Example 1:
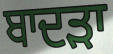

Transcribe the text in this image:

ਬਾਦੜਾ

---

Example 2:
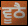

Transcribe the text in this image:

ਵੂਠੈ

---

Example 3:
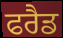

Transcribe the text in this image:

ਫਰੈਡ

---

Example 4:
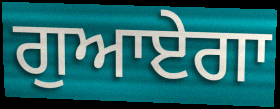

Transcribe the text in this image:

ਗੁਆਏਗਾ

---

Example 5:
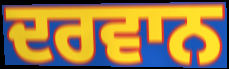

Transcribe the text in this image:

ਦਰਵਾਨ